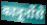
कानूनोंसे